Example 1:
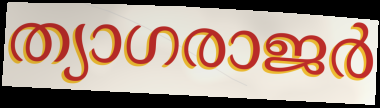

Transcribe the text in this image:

ത്യാഗരാജർ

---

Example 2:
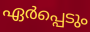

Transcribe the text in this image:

ഏർപ്പെടും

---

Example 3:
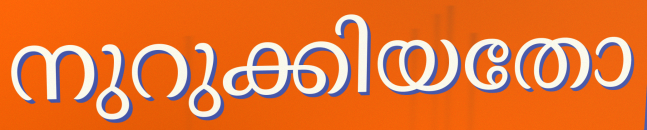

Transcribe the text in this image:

നുറുക്കിയതോ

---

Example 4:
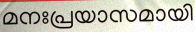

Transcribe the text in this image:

മനഃപ്രയാസമായി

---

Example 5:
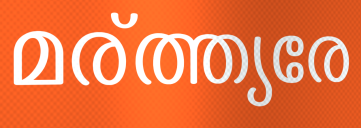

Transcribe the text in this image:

മര്ത്ത്യരേ